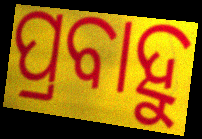
ପ୍ରବାହୁ